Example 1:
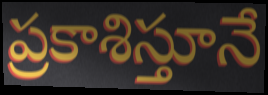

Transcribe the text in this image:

ప్రకాశిస్తూనే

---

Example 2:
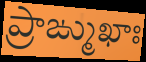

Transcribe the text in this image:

ప్రాఙ్ముఖాః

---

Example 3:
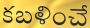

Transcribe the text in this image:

కబళించే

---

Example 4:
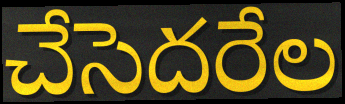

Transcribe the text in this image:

చేసెదరేల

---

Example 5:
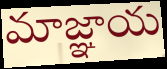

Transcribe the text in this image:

మాజ్ఞాయ